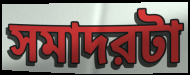
সমাদরটা